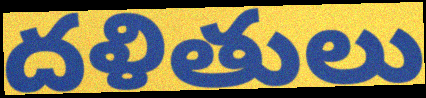
దళితులు